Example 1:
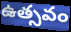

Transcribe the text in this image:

ఉత్సవం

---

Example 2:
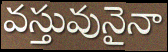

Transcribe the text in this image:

వస్తువునైనా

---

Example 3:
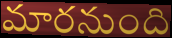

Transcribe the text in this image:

మారనుంది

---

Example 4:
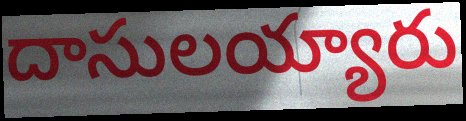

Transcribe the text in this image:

దాసులయ్యారు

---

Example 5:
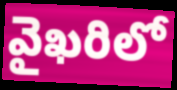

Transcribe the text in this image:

వైఖరిలో